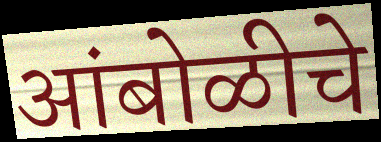
आंबोळीचे